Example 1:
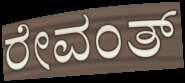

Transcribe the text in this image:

ರೇವಂತ್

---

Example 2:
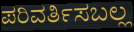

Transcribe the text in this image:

ಪರಿವರ್ತಿಸಬಲ್ಲ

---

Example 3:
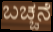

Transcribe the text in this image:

ಬಚ್ಚನೆ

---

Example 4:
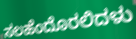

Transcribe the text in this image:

ಸಲಹೆಂದೊರಲಿದಳು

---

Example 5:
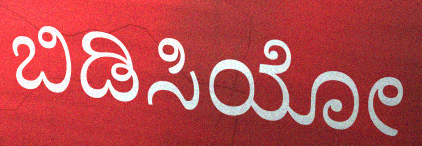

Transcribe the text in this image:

ಬಿಡಿಸಿಯೋ